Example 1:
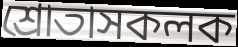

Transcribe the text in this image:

শ্ৰোতাসকলক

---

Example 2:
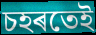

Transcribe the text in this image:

চহৰতেই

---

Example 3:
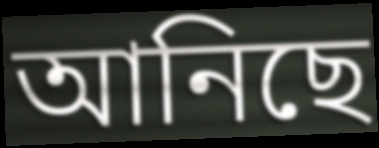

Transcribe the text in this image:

আনিছে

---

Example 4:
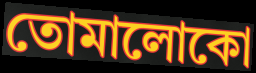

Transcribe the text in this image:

তোমালোকো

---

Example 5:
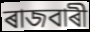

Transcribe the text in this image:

ৰাজবাৰী